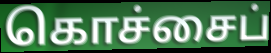
கொச்சைப்